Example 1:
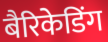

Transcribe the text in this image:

बैरिकेडिंग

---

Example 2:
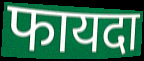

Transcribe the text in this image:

फायदा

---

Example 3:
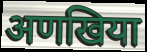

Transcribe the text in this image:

अणखिया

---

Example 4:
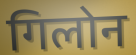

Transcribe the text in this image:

गिलोन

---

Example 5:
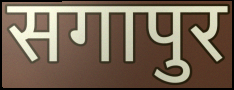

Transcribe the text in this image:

सगापुर